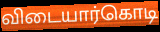
விடையார்கொடி